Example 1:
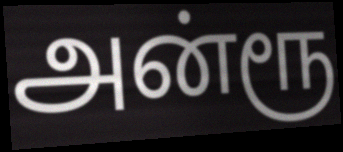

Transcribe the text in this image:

அன்ரூ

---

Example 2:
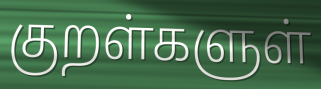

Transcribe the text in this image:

குறள்களுள்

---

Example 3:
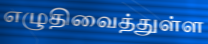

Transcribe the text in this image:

எழுதிவைத்துள்ள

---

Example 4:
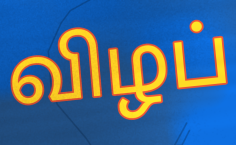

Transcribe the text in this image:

விழப்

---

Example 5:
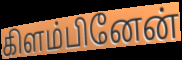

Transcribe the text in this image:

கிளம்பினேன்